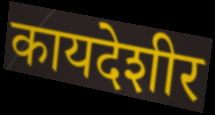
कायदेशीर